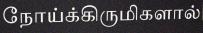
நோய்க்கிருமிகளால்